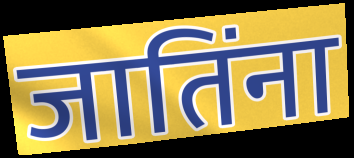
जातिंना